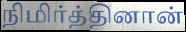
நிமிர்த்தினான்